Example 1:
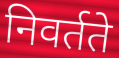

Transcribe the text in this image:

निवर्तते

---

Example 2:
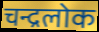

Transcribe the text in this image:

चन्द्रलोक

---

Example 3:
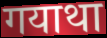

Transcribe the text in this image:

गयाथा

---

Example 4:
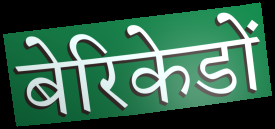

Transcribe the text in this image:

बेरिकेडों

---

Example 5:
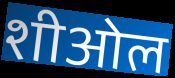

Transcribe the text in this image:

शीओल